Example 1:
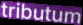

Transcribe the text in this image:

tributum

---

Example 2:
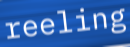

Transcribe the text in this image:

reeling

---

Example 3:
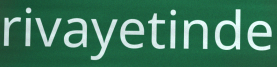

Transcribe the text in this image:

rivayetinde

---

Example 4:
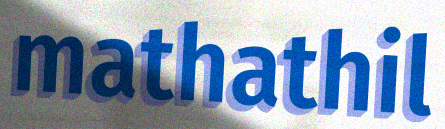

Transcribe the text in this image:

mathathil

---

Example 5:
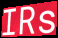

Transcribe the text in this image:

IRs